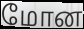
மோன